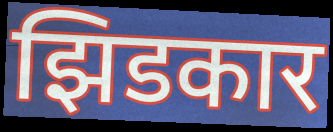
झिडकार